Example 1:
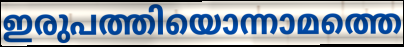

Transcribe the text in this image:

ഇരുപത്തിയൊന്നാമത്തെ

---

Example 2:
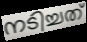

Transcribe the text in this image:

നടിച്ചത്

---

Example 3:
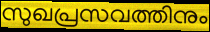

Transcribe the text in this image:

സുഖപ്രസവത്തിനും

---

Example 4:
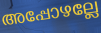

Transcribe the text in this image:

അപ്പോഴല്ലേ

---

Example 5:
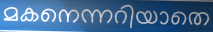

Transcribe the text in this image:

മകനെന്നറിയാതെ